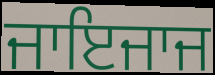
ਜਾਇਜਾਜ